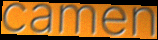
camen